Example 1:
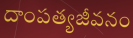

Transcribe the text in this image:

దాంపత్యజీవనం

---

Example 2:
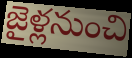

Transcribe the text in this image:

జైళ్లనుంచి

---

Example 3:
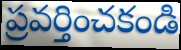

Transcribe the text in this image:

ప్రవర్తించకండి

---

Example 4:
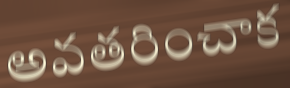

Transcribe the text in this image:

అవతరించాక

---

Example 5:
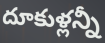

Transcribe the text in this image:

దూకుళ్లన్నీ